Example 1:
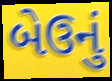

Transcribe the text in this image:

બેઉનું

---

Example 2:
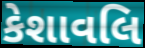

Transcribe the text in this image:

કેશાવલિ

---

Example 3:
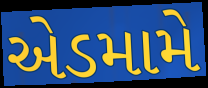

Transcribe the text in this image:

એડમામે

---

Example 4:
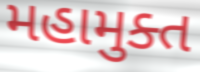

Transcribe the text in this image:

મહામુક્ત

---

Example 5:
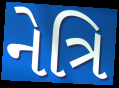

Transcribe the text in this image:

નેત્રિ